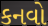
કનવો